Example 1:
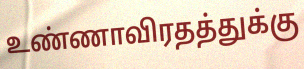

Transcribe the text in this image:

உண்ணாவிரதத்துக்கு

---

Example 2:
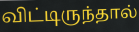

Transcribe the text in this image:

விட்டிருந்தால்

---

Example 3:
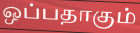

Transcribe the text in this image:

ஒப்பதாகும்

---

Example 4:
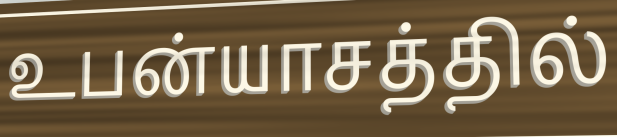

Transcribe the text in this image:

உபன்யாசத்தில்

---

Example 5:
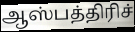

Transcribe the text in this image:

ஆஸ்பத்திரிச்